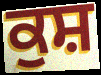
ਕੁਸ਼